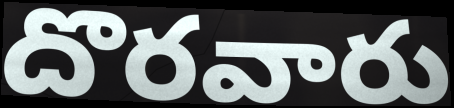
దొరవారు